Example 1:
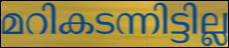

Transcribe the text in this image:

മറികടന്നിട്ടില്ല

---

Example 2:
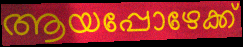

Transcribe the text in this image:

ആയപ്പോഴേക്ക്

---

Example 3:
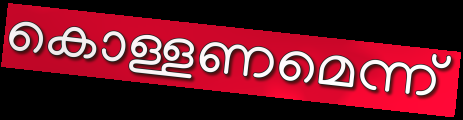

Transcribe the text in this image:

കൊള്ളണമെന്ന്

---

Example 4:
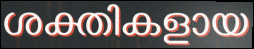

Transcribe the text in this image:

ശക്തികളായ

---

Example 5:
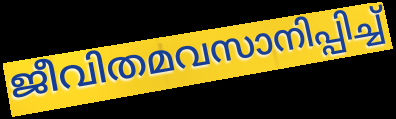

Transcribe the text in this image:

ജീവിതമവസാനിപ്പിച്ച്